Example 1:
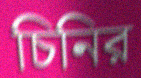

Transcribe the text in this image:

চিনির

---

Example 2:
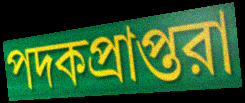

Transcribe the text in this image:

পদকপ্রাপ্তরা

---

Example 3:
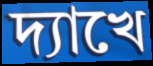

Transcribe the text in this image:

দ্যাখে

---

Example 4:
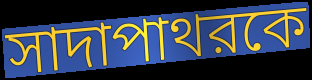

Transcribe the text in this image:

সাদাপাথরকে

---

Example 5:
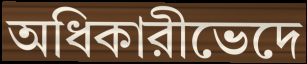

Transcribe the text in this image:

অধিকারীভেদে